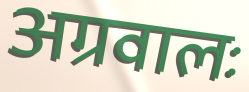
अग्रवालः